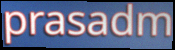
prasadm